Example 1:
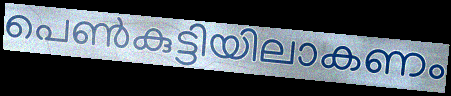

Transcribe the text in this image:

പെൺകുട്ടിയിലാകണം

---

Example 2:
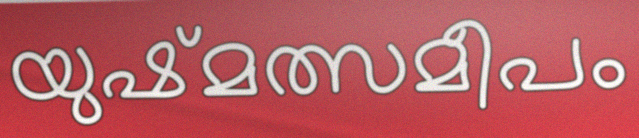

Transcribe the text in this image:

യുഷ്മത്സമീപം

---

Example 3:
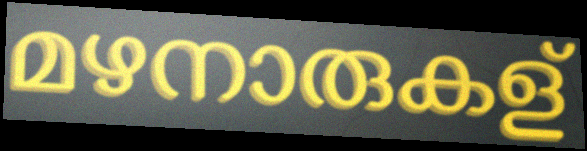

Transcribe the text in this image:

മഴനാരുകള്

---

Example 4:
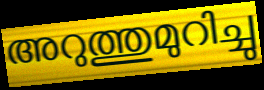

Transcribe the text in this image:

അറുത്തുമുറിച്ചു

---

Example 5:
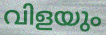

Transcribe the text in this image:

വിളയും